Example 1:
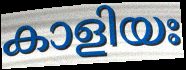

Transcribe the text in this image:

കാളിയഃ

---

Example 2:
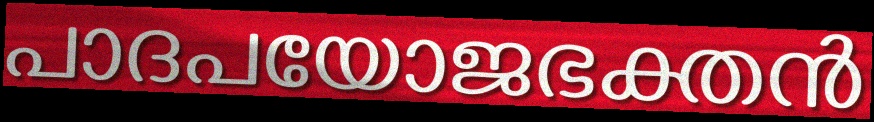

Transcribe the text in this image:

പാദപയോജഭക്തൻ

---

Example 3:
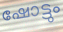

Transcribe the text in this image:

ഷോട്ടും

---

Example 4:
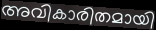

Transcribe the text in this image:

അവികാരിതമായി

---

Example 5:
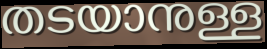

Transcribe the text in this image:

തടയാനുള്ള